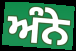
ਅੰਨੇ